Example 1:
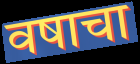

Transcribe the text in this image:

वषाचा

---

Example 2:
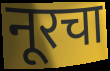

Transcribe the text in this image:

नूरचा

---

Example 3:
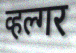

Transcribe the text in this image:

व्हल्गर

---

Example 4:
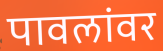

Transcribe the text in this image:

पावलांवर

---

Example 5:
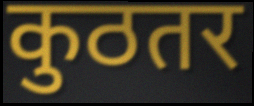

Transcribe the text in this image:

कुठतर